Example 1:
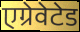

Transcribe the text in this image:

एग्रेवेटेड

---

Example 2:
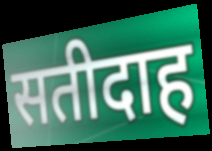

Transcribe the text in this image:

सतीदाह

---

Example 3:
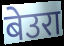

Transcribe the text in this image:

बेउरा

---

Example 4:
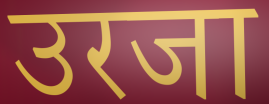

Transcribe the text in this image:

उरजा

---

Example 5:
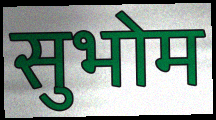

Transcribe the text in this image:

सुभोम